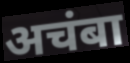
अचंबा